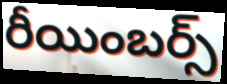
రీయింబర్స్